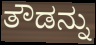
ತೌಡನ್ನು